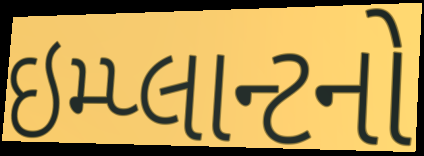
ઇમ્પ્લાન્ટનો